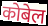
कोबेल